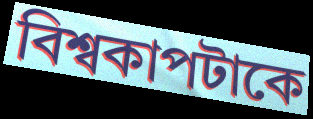
বিশ্বকাপটাকে